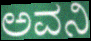
ಅವನಿ